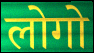
लोगो